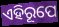
ଏହିରୂପେ